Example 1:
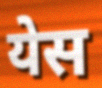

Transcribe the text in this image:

येस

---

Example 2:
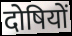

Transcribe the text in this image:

दोषियों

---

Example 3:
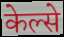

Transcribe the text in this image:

केल्से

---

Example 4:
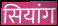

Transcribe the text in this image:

सियांग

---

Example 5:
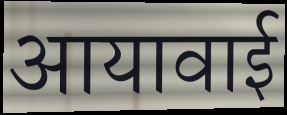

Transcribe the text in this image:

आयावाई